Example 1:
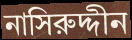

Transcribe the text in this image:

নাসিরুদ্দীন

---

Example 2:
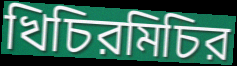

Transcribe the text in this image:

খিচিরমিচির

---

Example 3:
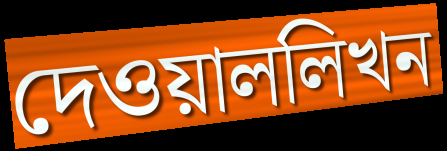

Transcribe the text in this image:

দেওয়াললিখন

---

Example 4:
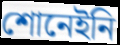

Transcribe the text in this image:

শোনেইনি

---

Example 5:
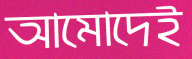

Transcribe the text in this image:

আমোদেই